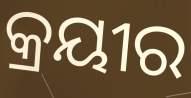
କ୍ରୟୀର